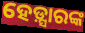
ହେଡ଼୍ସାରଙ୍କ